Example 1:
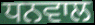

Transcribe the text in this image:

ਧਨਵਾਲ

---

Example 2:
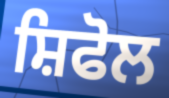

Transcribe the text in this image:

ਸ਼ਿਫੋਲ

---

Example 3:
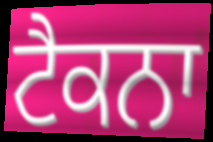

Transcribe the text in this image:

ਟੈਕਨਾ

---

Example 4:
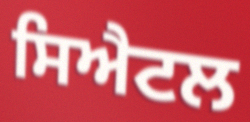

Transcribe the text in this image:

ਸਿਐਟਲ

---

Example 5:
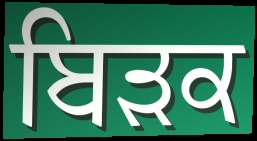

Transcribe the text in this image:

ਬਿੜਕ